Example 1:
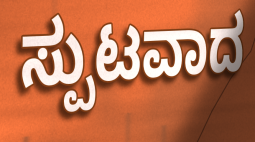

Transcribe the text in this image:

ಸ್ಪುಟವಾದ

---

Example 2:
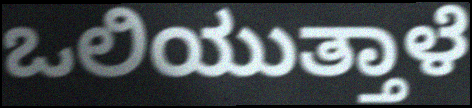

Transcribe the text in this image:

ಒಲಿಯುತ್ತಾಳೆ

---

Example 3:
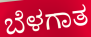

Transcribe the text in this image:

ಬೆಳಗಾತ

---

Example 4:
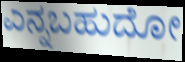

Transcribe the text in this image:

ಎನ್ನಬಹುದೋ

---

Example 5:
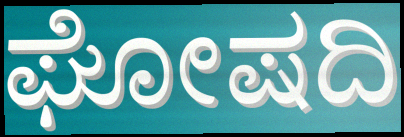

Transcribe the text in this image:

ಘೋಷದಿ